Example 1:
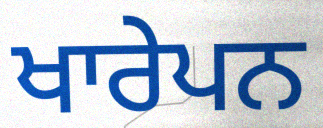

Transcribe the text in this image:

ਖਾਰੇਪਨ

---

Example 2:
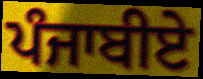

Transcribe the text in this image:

ਪੰਜਾਬੀਏ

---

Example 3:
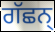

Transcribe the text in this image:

ਗੱਛਨ੍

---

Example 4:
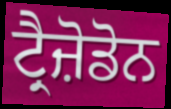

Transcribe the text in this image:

ਟ੍ਰੈਜ਼ੋਡੋਨ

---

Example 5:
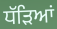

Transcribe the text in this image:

ਧੱੜਿਆਂ